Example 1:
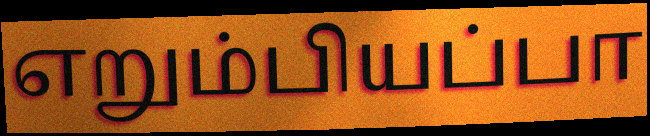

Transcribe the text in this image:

எறும்பியப்பா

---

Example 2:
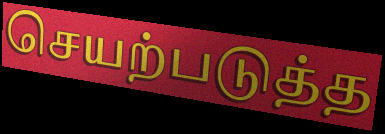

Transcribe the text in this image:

செயற்படுத்த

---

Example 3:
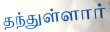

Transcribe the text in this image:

தந்துள்ளார்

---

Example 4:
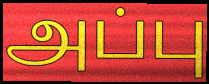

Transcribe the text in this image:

அப்பு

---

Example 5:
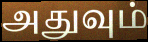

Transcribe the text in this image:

அதுவும்